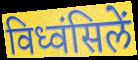
विध्वंसिलें